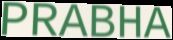
PRABHA